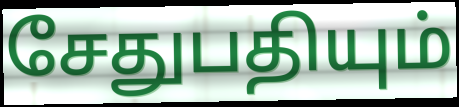
சேதுபதியும்